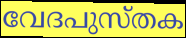
വേദപുസ്തക